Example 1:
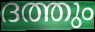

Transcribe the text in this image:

ദത്തും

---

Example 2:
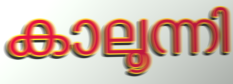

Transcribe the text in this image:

കാലൂന്നി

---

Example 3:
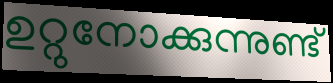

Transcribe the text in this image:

ഉറ്റുനോക്കുന്നുണ്ട്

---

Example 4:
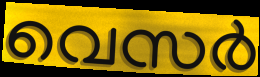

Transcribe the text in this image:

വെസർ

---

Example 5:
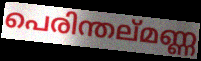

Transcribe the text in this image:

പെരിന്തല്മണ്ണ